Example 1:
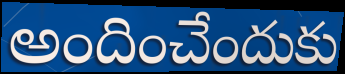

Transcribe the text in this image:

అందించేందుకు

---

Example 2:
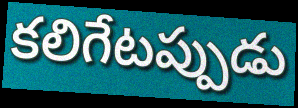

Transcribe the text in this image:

కలిగేటప్పుడు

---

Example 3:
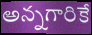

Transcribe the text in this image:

అన్నగారికే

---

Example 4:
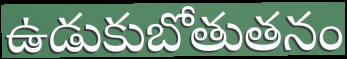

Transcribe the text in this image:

ఉడుకుబోతుతనం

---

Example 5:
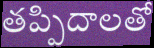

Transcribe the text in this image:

తప్పిదాలతో